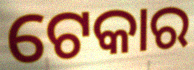
ଟେକାର